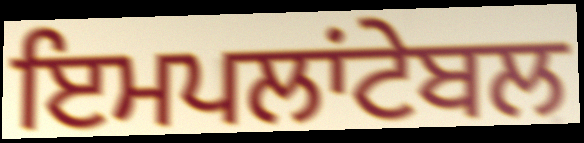
ਇਮਪਲਾਂਟੇਬਲ